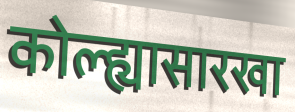
कोल्ह्यासारखा